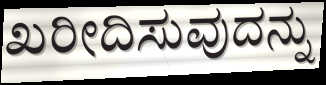
ಖರೀದಿಸುವುದನ್ನು